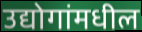
उद्योगांमधील